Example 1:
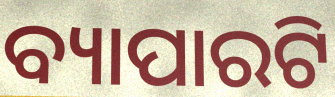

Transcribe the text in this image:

ବ୍ୟାପାରଟି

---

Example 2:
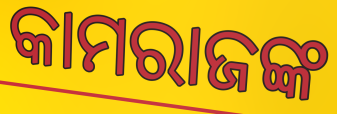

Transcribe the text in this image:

କାମରାଜଙ୍କ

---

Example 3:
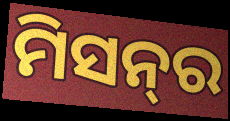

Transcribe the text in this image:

ମିସନ୍‍ର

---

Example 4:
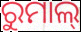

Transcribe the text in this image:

ରୁମାଲ୍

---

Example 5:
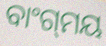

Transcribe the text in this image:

ବାଂଗ୍‌ମୟ